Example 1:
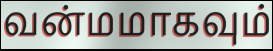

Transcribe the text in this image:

வன்மமாகவும்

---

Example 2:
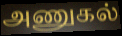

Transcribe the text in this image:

அணுகல்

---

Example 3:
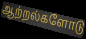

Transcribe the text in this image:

ஆற்றல்களோடு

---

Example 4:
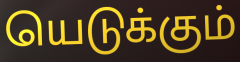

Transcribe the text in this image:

யெடுக்கும்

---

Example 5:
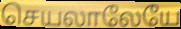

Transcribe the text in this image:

செயலாலேயே